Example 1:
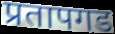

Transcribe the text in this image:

प्रतापगड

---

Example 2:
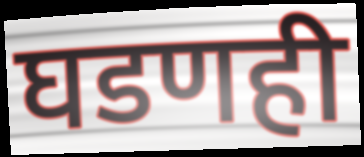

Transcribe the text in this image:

घडणही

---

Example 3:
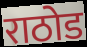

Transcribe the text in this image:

राठोड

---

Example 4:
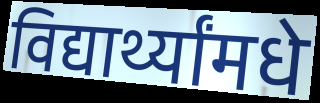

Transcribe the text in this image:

विद्यार्थ्यांमधे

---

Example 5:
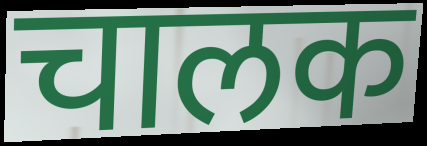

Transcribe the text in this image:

चालक